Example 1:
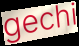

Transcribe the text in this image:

gechi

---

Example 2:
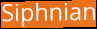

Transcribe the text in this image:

Siphnian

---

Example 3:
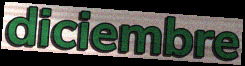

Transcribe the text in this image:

diciembre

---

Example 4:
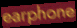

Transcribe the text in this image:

earphone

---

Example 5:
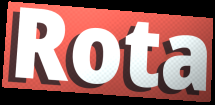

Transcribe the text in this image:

Rota